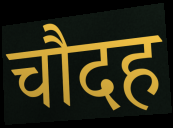
चौदह